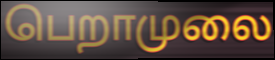
பெறாமுலை